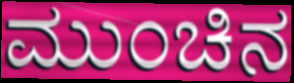
ಮುಂಚಿನ